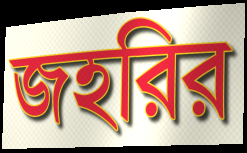
জহরির